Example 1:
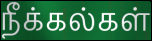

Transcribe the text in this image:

நீக்கல்கள்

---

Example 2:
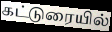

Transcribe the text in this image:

கட்டுரையில்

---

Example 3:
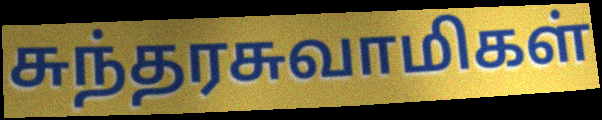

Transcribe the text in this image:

சுந்தரசுவாமிகள்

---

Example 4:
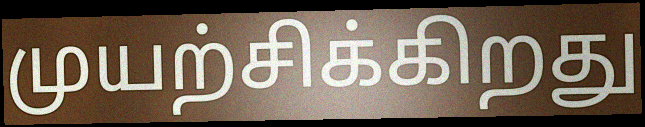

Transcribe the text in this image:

முயற்சிக்கிறது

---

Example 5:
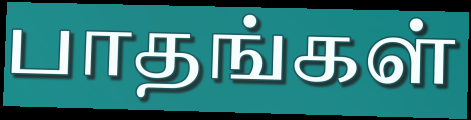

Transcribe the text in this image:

பாதங்கள்